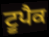
ਟੂਪੈਕ